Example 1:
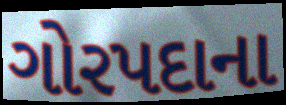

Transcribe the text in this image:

ગોરપદાના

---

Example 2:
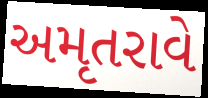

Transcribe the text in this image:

અમૃતરાવે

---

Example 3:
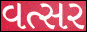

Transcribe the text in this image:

વત્સર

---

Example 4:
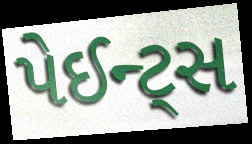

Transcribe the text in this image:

પેઈન્ટ્સ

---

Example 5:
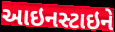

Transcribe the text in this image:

આઇનસ્ટાઇને